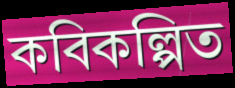
কবিকল্পিত